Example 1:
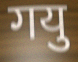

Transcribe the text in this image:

गयु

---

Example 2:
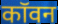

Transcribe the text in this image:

कॉवन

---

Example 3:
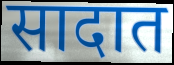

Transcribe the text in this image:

सादात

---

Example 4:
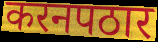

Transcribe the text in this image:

करनपठार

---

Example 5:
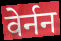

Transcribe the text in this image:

वेर्नन